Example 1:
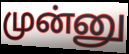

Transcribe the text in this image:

முன்னு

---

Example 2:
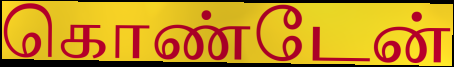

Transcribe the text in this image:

கொண்டேன்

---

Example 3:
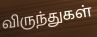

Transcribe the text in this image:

விருந்துகள்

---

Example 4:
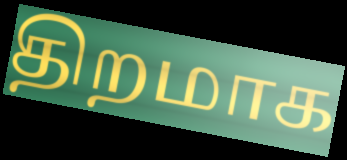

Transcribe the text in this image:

திறமாக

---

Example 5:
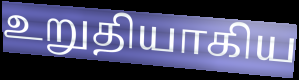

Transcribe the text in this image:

உறுதியாகிய